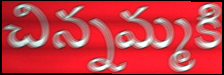
చిన్నమ్మకి